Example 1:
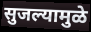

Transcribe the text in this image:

सुजल्यामुळे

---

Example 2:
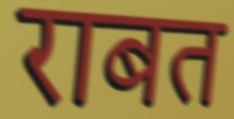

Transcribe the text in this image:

राबत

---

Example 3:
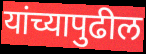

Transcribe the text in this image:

यांच्यापुढील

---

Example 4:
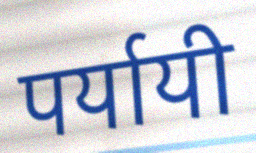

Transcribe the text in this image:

पर्यायी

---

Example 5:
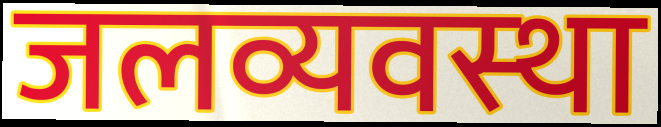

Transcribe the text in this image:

जलव्यवस्था